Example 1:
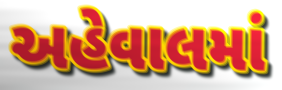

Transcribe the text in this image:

અહેવાલમાં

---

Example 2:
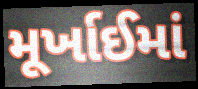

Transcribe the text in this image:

મૂર્ખાઈમાં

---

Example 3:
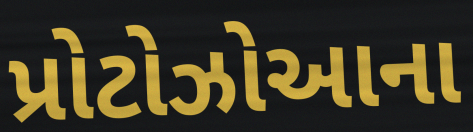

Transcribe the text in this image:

પ્રોટોઝોઆના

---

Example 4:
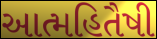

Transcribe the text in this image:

આત્મહિતૈષી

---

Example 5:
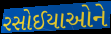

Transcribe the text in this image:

રસોઈયાઓને